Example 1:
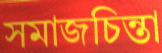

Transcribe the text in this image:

সমাজচিন্তা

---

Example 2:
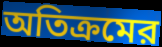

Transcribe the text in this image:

অতিক্রমের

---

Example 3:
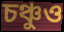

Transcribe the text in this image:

চঞ্চুও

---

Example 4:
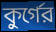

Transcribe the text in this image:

কুর্গের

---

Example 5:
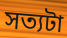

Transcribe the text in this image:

সত্যটা